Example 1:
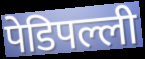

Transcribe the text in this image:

पेडिपल्ली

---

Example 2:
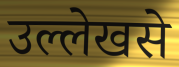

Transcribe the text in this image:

उल्लेखसे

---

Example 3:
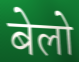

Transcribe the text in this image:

बेलो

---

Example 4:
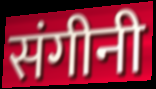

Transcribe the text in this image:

संगीनी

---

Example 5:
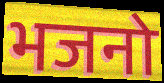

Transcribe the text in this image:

भजनो